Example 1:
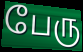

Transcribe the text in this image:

பேரு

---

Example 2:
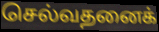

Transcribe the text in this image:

செல்வதனைக்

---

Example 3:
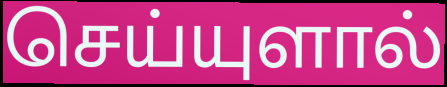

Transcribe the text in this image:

செய்யுளால்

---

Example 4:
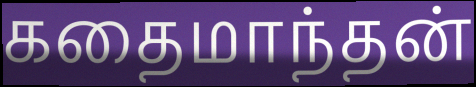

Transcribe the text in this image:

கதைமாந்தன்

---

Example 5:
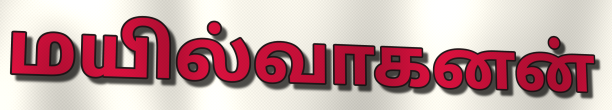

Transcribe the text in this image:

மயில்வாகனன்